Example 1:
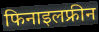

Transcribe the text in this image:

फिनाइलफ्रीन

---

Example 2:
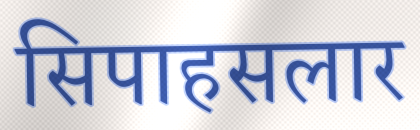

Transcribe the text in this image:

सिपाहसलार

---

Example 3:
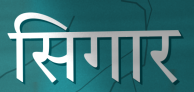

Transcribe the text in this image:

सिगार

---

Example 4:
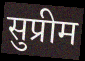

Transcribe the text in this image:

सुप्रीम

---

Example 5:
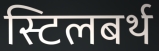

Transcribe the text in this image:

स्टिलबर्थ